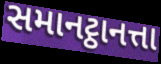
સમાનટ્ઠાનત્તા